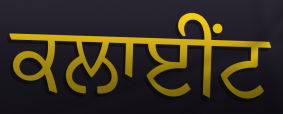
ਕਲਾਈਂਟ